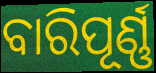
ବାରିପୂର୍ଣ୍ଣ